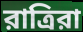
রাত্রিরা